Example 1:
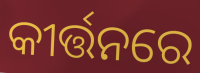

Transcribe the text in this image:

କୀର୍ତ୍ତନରେ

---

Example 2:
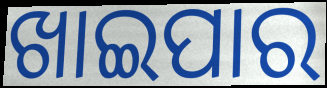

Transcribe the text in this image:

ଖାଇପାର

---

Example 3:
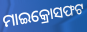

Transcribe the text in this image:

ମାଇକ୍ରୋସଫଟ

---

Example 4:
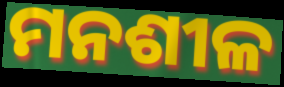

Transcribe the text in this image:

ମନଶୀଳ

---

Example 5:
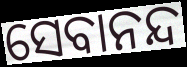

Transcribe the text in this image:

ସେବାନନ୍ଦ